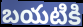
బయటికి